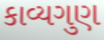
કાવ્યગુણ